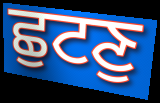
ਛੁਟਣੁ